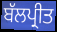
ਬੱਲਪ੍ਰੀਤ